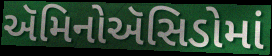
ઍમિનોઍસિડોમાં